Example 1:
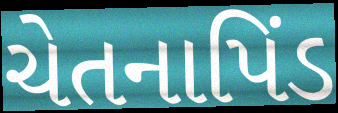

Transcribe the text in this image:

ચેતનાપિંડ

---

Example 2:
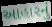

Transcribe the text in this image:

આહારનું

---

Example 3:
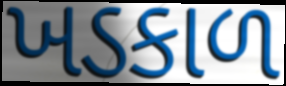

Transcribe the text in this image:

ખડકાળ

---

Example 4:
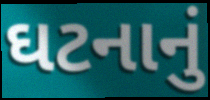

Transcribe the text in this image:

ઘટનાનું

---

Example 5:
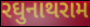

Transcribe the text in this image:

રઘુનાથરામ